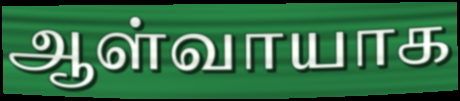
ஆள்வாயாக